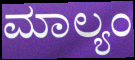
ಮಾಲ್ಯಂ